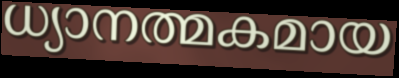
ധ്യാനത്മകമായ